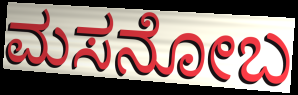
ಮಸನೋಬ